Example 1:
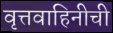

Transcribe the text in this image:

वृत्तवाहिनीची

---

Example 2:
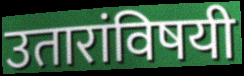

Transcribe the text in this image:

उतारांविषयी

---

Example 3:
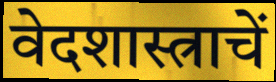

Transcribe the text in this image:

वेदशास्त्राचें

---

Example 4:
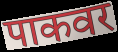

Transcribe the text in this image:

पाकवर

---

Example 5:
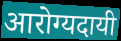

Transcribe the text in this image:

आरोग्यदायी